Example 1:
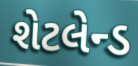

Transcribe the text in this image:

શેટલેન્ડ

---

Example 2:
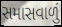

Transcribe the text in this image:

સમાસવાળું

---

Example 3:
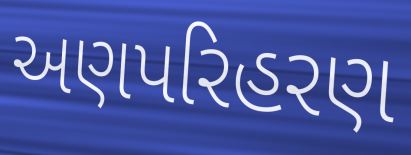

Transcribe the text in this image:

અણપરિહરણ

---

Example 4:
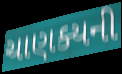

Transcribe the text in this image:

ચાણક્યની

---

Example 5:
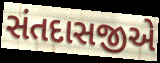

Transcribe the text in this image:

સંતદાસજીએ